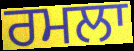
ਰਮਲਾ